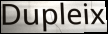
Dupleix